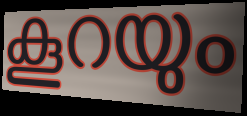
കൂറയും